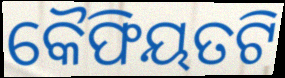
କୈଫିୟତଟି